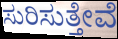
ಸುರಿಸುತ್ತೇವೆ